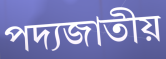
পদ্যজাতীয়